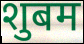
शुबम